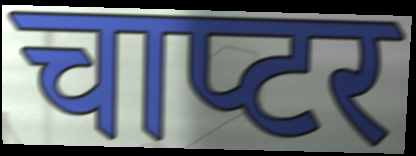
चाप्टर